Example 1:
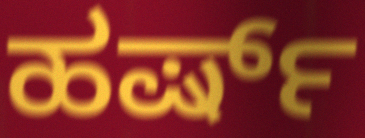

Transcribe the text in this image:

ಹರ್ಷ್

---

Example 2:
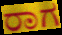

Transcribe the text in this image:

ರಾಗ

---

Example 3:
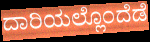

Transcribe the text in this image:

ದಾರಿಯಲ್ಲೊಂದೆಡೆ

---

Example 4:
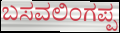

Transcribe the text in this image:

ಬಸವಲಿಂಗಪ್ಪ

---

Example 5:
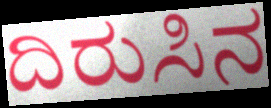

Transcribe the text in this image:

ದಿರುಸಿನ